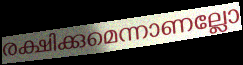
രക്ഷിക്കുമെന്നാണല്ലോ